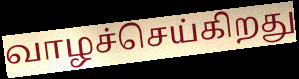
வாழச்செய்கிறது